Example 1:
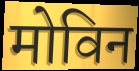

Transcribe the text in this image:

मोविन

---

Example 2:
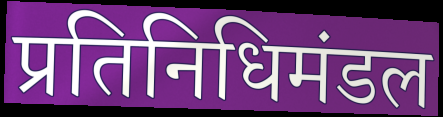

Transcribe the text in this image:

प्रतिनिधिमंडल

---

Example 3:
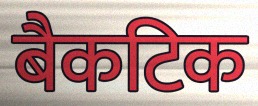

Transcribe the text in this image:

बैकटिक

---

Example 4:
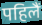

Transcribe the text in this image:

पहिलैं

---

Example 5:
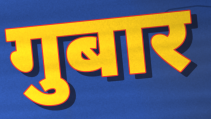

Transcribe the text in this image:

गुबार